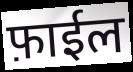
फ़ाईल